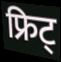
फ्रिट्